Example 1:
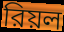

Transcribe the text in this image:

রিয়ল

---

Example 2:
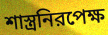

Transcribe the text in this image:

শাস্ত্রনিরপেক্ষ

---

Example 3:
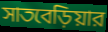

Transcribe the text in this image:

সাতবেড়িয়ার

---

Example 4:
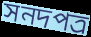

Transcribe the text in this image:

সনদপত্র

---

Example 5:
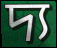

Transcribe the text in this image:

দ্য